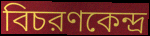
বিচরণকেন্দ্র